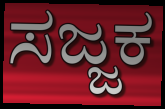
ಸಜ್ಜಕ